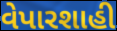
વેપારશાહી